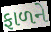
ફાળને